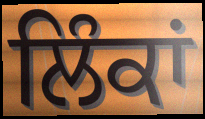
ਲਿੰਕਾਂ